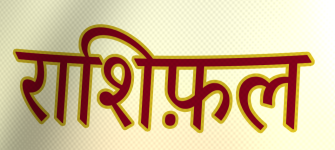
राशिफ़ल